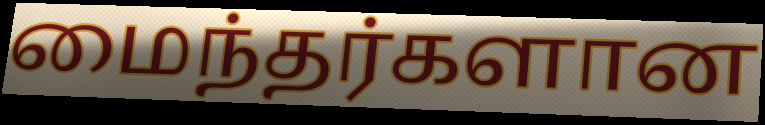
மைந்தர்களான